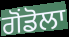
ਗੋਂਡੋਲਾ